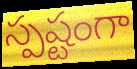
స్పష్టంగా